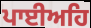
ਪਾਈਅਹਿ